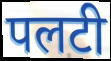
पलटी